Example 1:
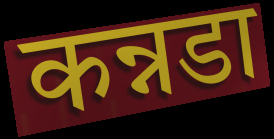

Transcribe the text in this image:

कन्नडा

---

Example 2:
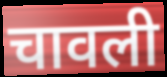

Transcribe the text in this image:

चावली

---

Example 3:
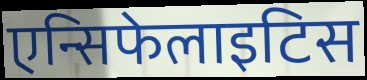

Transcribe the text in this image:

एन्सिफेलाइटिस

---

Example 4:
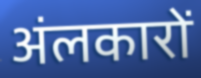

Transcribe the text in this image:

अंलकारों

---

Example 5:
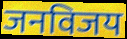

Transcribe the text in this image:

जनविजय